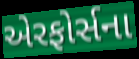
એરફોર્સના